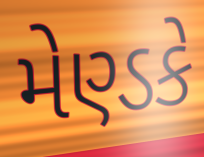
મેણ્ડકે